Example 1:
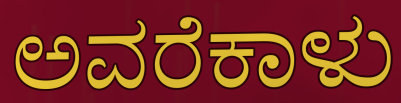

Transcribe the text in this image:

ಅವರೆಕಾಳು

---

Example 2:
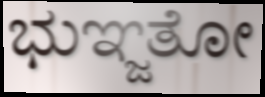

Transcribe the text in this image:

ಭುಞ್ಜತೋ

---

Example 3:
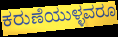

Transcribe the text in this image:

ಕರುಣೆಯುಳ್ಳವರೂ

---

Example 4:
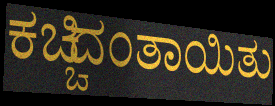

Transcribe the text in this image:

ಕಚ್ಚಿದಂತಾಯಿತು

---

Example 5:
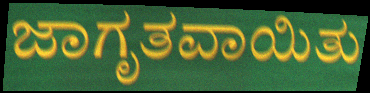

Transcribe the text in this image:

ಜಾಗೃತವಾಯಿತು